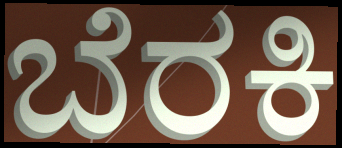
ಬೆರಕಿ